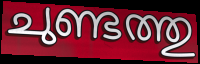
ചുണ്ടത്തു